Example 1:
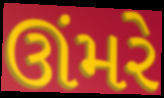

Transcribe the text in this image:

ઊંમરે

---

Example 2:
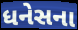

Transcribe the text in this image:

ધનેસના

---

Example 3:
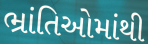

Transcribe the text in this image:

ભ્રાંતિઓમાંથી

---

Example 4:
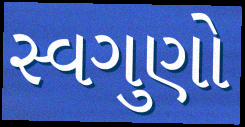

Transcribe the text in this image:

સ્વગુણો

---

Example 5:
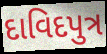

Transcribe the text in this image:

દાવિદપુત્ર